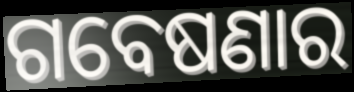
ଗବେଷଣାର